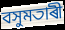
বসুমতাৰী